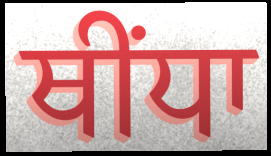
ਥੀਂਧਾ